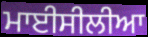
ਮਾਈਸੀਲੀਆ